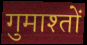
गुमाश्तों